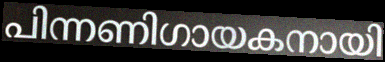
പിന്നണിഗായകനായി